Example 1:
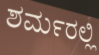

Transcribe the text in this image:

ಶರ್ಮರಲ್ಲಿ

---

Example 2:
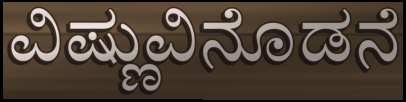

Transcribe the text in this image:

ವಿಷ್ಣುವಿನೊಡನೆ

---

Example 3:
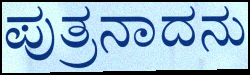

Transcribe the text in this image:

ಪುತ್ರನಾದನು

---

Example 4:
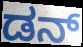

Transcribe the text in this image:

ಡನ್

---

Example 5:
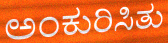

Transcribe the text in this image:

ಅಂಕುರಿಸಿತು